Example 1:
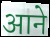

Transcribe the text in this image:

आने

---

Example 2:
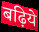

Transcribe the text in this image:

बढ़िये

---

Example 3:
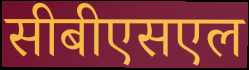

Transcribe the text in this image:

सीबीएसएल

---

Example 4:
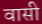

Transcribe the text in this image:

वासी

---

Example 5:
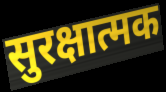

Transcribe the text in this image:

सुरक्षात्मक